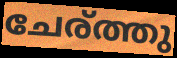
ചേര്ത്തു